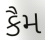
કૈમ